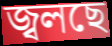
জ্বলছে